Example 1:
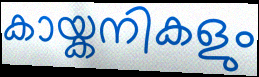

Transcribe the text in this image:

കായ്കനികളും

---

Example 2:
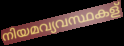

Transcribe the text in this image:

നിയമവ്യവസ്ഥകള്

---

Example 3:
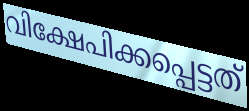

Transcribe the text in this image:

വിക്ഷേപിക്കപ്പെട്ടത്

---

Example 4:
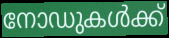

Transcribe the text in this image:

നോഡുകൾക്ക്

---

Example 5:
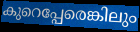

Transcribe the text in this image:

കുറെപ്പേരെങ്കിലും